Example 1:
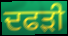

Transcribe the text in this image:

ਦਫੜੀ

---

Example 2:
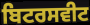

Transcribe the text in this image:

ਬਿਟਰਸਵੀਟ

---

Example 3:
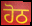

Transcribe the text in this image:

ਹੋਠ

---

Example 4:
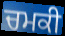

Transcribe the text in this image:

ਚਮਕੀ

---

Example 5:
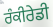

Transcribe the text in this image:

ਰੰਕੀਰੇਡੀ